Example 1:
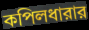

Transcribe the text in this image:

কপিলধারার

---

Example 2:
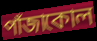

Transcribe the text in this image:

পাঁজাকোল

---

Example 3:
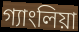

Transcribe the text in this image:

গ্যাংলিয়া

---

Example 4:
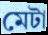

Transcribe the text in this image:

মেটা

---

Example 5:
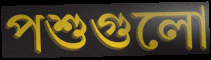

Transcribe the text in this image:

পশুগুলো